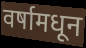
वर्षामधून